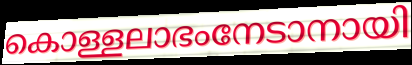
കൊള്ളലാഭംനേടാനായി